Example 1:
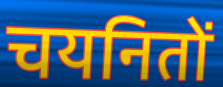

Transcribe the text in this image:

चयनितों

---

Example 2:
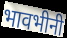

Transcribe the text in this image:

भावभीनी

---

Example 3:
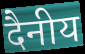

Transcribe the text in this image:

दैनीय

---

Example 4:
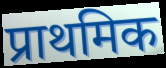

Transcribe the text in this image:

प्राथमिक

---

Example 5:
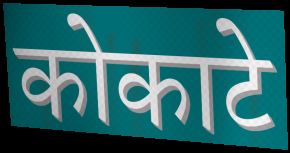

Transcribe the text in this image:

कोकाटे